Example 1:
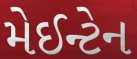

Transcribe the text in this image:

મેઈન્ટેન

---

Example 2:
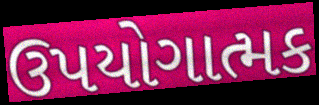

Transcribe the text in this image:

ઉપયોગાત્મક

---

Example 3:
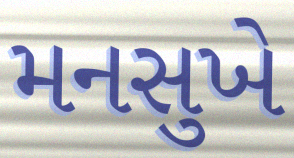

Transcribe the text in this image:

મનસુખે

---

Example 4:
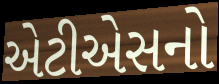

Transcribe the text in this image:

એટીએસનો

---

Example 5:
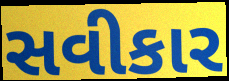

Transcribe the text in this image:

સવીકાર